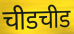
चीडचीड